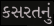
કસરતનું